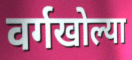
वर्गखोल्या